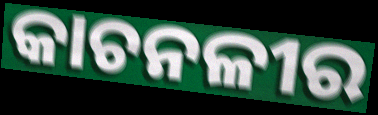
କାଚନଳୀର